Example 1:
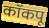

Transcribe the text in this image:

कॉकपू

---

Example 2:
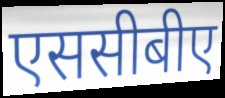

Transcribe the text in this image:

एससीबीए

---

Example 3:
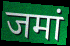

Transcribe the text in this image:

जमां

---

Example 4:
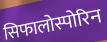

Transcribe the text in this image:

सिफालोस्पोरिन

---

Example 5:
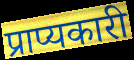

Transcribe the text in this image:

प्राप्यकारी